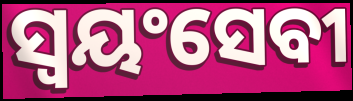
ସ୍ୱୟଂସେବୀ